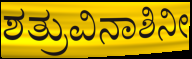
ಶತ್ರುವಿನಾಶಿನೀ